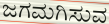
ಜಗಮಗಿಸುವ